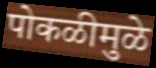
पोकळीमुळे